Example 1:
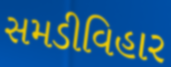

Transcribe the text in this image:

સમડીવિહાર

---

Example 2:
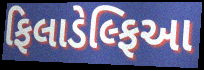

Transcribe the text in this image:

ફિલાડેલ્ફિઆ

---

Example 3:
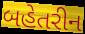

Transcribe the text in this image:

બહેતરીન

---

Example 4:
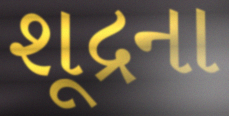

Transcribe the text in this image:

શૂદ્રના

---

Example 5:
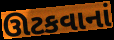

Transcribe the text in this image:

ઊટકવાનાં